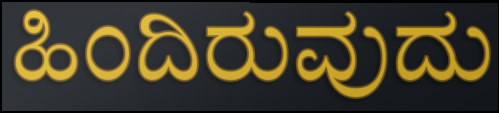
ಹಿಂದಿರುವುದು